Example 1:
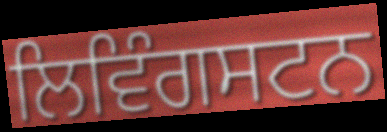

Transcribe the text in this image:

ਲਿਵਿੰਗਸਟਨ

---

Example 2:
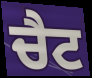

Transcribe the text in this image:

ਚੈਟ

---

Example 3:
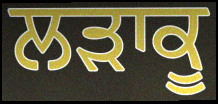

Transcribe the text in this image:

ਲੜਾਕੂ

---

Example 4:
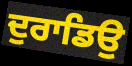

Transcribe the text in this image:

ਦੁਰਾਡਿਉ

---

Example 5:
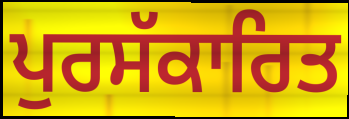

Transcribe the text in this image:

ਪੁਰਸੱਕਾਰਿਤ